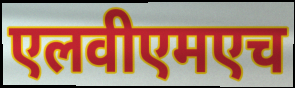
एलवीएमएच